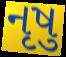
નૃષુ